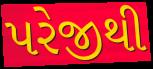
પરેજીથી